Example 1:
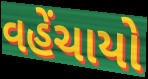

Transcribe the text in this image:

વહેંચાયો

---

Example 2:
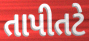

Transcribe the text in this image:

તાપીતટે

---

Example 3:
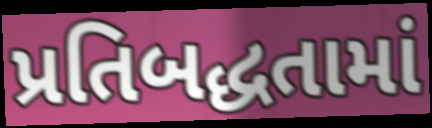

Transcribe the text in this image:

પ્રતિબદ્ધતામાં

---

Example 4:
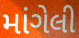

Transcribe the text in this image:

માંગેલી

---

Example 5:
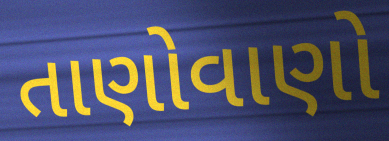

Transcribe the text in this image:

તાણોવાણો